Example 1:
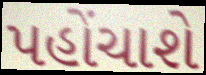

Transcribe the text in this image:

પહોંચાશે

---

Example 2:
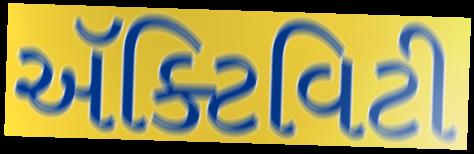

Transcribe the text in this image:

ઍક્ટિવિટી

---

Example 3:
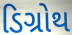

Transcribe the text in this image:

ડિગ્રોથ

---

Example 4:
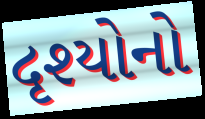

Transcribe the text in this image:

દૃશ્યોનો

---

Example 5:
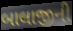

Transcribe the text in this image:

બાલાજીની